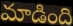
మాడింది